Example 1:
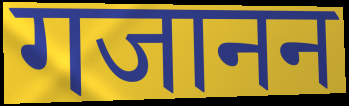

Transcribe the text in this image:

गजानन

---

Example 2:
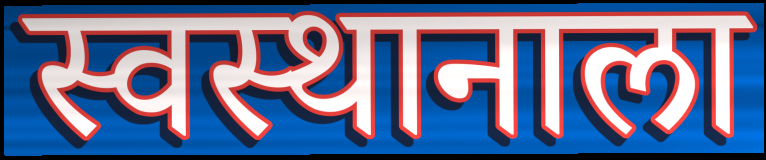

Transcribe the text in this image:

स्वस्थानाला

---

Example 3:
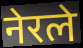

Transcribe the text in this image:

नेरले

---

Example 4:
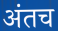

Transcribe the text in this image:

अंतच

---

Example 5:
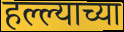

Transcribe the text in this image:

हल्ल्याच्या